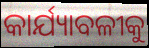
କାର୍ଯ୍ୟାବଳୀକୁ